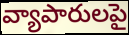
వ్యాపారులపై